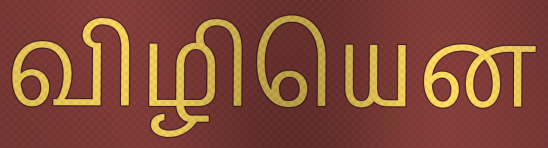
விழியென